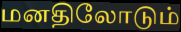
மனதிலோடும்